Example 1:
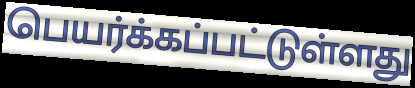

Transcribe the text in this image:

பெயர்க்கப்பட்டுள்ளது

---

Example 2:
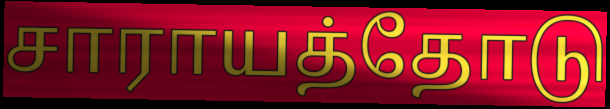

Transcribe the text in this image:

சாராயத்தோடு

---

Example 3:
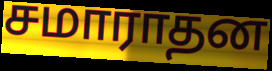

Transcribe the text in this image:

சமாராதன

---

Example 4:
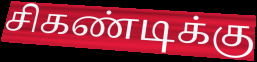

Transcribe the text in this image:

சிகண்டிக்கு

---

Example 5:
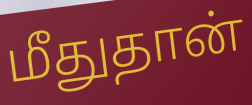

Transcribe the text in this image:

மீதுதான்